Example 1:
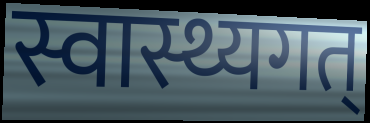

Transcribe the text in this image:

स्वास्थ्यगत्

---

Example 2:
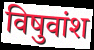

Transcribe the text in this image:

विषुवांश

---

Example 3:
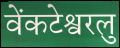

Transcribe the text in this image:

वेंकटेश्वरलु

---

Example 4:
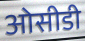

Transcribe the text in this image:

ओसीडी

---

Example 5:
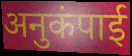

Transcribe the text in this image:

अनुकंपाई